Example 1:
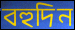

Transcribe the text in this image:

বহুদিন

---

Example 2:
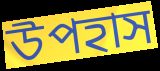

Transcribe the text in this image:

উপহাস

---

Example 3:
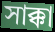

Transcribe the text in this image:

সাক্কা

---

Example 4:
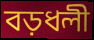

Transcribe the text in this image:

বড়ধলী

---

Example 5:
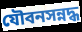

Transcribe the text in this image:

যৌবনসন্নদ্ধ